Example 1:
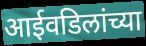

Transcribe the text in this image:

आईवडिलांच्या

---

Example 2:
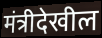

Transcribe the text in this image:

मंत्रीदेखील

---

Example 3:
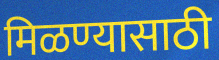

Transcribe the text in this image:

मिळण्‍यासाठी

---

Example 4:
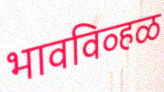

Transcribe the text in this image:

भावविव्हळ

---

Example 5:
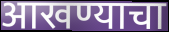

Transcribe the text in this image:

आखण्याचा